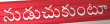
నుడుచుకుంటూ